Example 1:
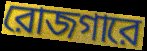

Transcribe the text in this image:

রোজগারে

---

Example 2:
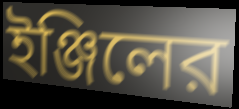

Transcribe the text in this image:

ইঞ্জিলের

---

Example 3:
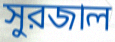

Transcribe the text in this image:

সুরজাল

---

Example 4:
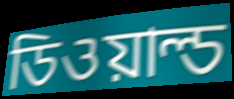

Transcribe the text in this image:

ডিওয়াল্ড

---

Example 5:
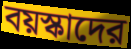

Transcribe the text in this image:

বয়স্কাদের